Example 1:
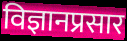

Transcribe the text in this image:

विज्ञानप्रसार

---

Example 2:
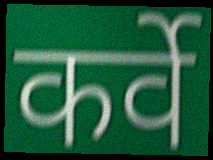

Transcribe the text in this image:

कर्वे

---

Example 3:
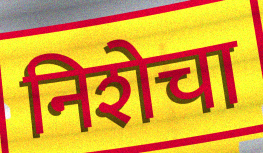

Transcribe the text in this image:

निशेचा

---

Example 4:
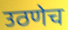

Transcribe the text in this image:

उठणेच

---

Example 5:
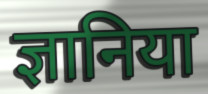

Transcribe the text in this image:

ज्ञानिया